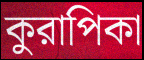
কুরাপিকা